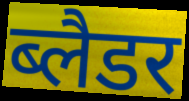
ब्लैडर